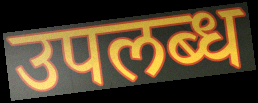
उपलब्ध